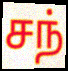
சந்